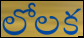
లోలక